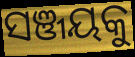
ସଞ୍ଜୟକୁ